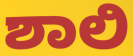
ಶಾಲಿ